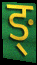
ङ्